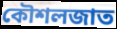
কৌশলজাত